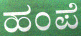
ಹಂಪೆ